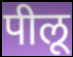
पीलू